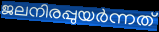
ജലനിരപ്പുയർന്നത്